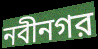
নবীনগর